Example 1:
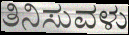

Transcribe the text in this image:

ತಿನಿಸುವಳು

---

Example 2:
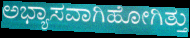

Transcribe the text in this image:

ಅಭ್ಯಾಸವಾಗಿಹೋಗಿತ್ತು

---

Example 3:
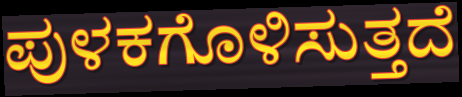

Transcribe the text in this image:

ಪುಳಕಗೊಳಿಸುತ್ತದೆ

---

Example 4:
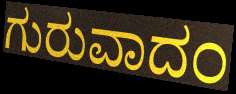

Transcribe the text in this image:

ಗುರುವಾದಂ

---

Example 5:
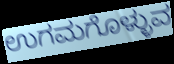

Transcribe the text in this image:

ಉಗಮಗೊಳ್ಳುವ